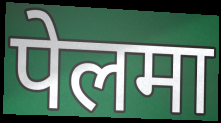
पेलमा